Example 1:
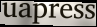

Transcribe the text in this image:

uapress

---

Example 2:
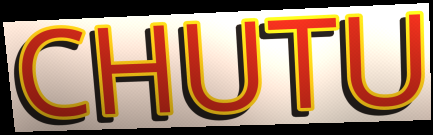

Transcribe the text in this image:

CHUTU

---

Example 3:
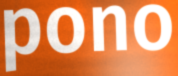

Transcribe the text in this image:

pono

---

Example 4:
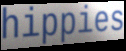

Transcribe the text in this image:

hippies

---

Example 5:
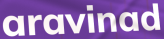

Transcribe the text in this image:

aravinad